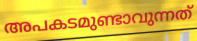
അപകടമുണ്ടാവുന്നത്